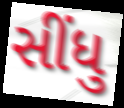
સીંધુ